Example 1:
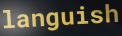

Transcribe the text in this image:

languish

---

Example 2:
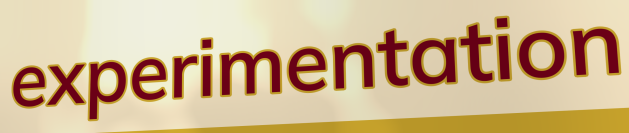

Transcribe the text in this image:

experimentation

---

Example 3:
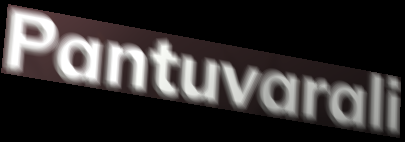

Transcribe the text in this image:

Pantuvarali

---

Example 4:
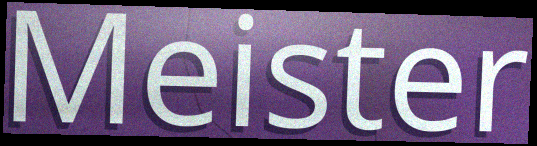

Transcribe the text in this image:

Meister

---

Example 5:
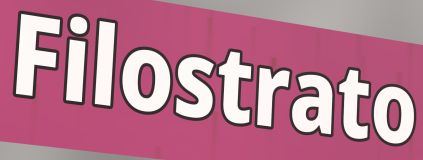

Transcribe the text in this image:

Filostrato